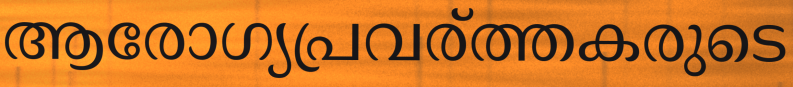
ആരോഗ്യപ്രവര്ത്തകരുടെ